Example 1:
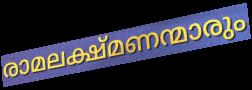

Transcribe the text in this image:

രാമലക്ഷ്മണന്മാരും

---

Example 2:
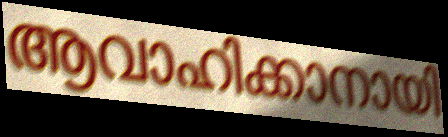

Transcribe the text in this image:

ആവാഹിക്കാനായി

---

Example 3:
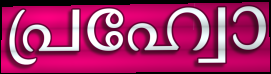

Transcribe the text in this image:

പ്രഹ്വോ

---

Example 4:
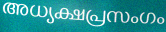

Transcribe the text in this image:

അധ്യക്ഷപ്രസംഗം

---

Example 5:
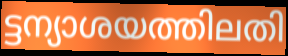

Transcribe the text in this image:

ട്ടന്യാശയത്തിലതി